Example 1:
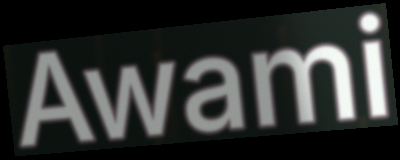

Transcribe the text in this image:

Awami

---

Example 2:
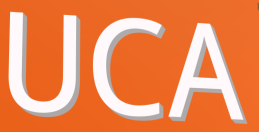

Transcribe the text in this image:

UCA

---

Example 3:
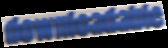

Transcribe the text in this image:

downloadable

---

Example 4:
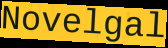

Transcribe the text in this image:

Novelgal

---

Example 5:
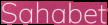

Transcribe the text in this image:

Sahabet